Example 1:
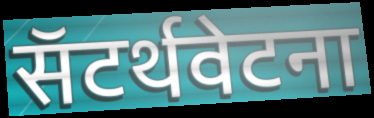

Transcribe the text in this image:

सॅटर्थवेटना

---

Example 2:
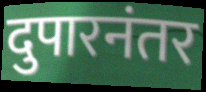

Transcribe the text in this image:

दुपारनंतर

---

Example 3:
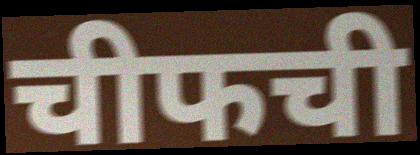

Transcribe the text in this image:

चीफची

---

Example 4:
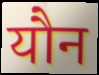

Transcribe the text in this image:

यौन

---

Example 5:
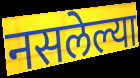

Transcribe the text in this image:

नसलेल्या